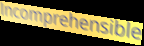
Incomprehensible